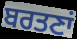
ਬਰਤਣਾਂ